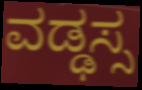
ವಡ್ಢಸ್ಸ